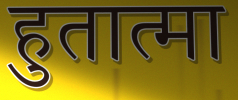
हुतात्मा